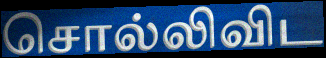
சொல்லிவிட